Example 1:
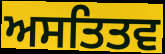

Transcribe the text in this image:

ਅਸਤਿਤਵ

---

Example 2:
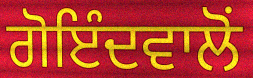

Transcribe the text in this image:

ਗੋਇੰਦਵਾਲੋਂ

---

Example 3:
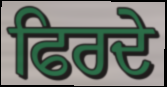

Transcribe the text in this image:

ਫਿਰਦੇ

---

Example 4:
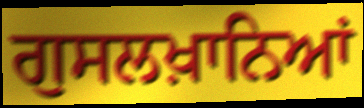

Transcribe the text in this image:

ਗੁਸਲਖ਼ਾਨਿਆਂ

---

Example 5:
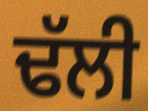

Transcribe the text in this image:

ਢੱਲੀ